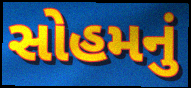
સોહમનું